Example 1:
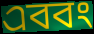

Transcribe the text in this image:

এববং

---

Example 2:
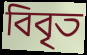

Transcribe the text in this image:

বিবৃত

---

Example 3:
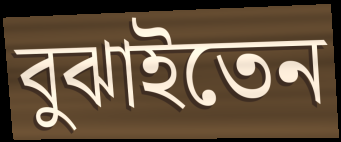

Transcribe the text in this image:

বুঝাইতেন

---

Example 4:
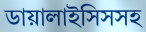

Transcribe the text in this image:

ডায়ালাইসিসসহ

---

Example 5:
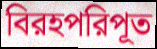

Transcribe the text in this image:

বিরহপরিপূত